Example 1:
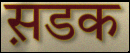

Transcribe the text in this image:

स़डक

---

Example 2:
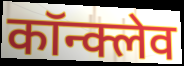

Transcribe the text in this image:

कॉन्क्लेव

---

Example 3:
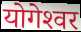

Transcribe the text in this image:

योगेश्‍वर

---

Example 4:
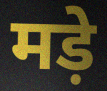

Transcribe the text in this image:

मड़े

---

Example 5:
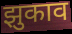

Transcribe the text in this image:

झुकाव